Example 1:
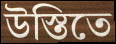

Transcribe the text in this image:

উস্তিতে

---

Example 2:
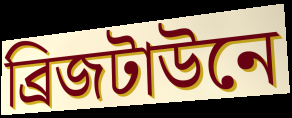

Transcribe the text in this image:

ব্রিজটাউনে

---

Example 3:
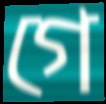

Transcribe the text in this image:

গে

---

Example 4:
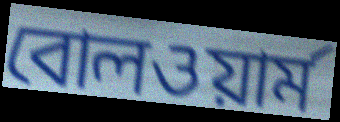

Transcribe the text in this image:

বোলওয়ার্ম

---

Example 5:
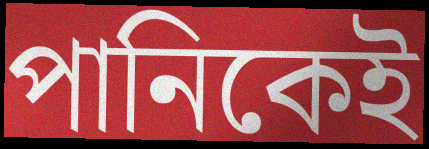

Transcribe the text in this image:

পানিকেই